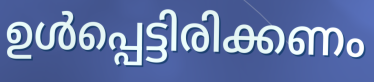
ഉൾപ്പെട്ടിരിക്കണം